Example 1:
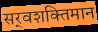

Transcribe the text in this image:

सर्वशक्‍तिमान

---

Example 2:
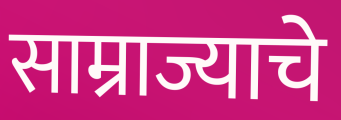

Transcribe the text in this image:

साम्राज्याचे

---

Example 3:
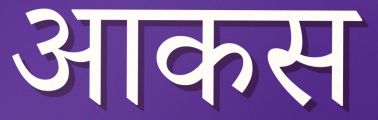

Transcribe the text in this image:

आकस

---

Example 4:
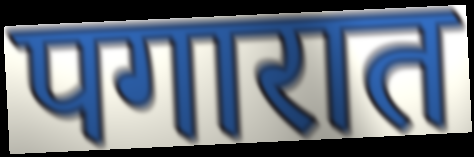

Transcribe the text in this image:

पगारात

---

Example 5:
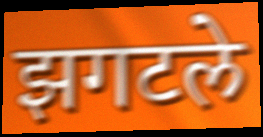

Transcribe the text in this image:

झगटले